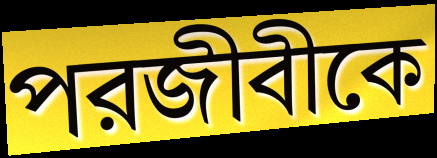
পরজীবীকে